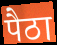
पैठा